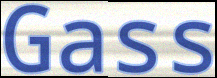
Gass